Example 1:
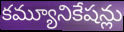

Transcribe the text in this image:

కమ్యూనికేషన్లు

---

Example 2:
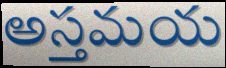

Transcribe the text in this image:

అస్తమయ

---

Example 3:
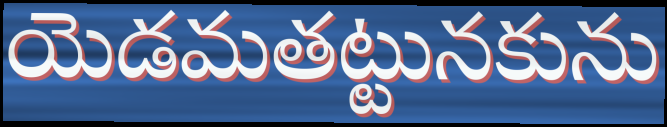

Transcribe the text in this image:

యెడమతట్టునకును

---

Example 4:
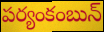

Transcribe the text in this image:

పర్యంకంబున్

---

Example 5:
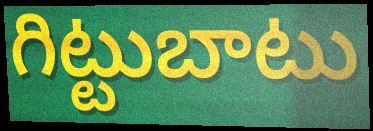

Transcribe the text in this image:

గిట్టుబాటు